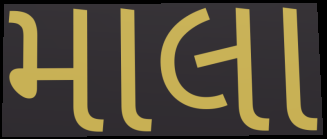
માલા